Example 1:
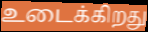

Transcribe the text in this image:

உடைக்கிறது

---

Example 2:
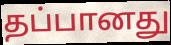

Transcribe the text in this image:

தப்பானது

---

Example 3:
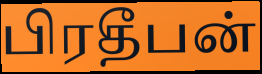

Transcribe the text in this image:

பிரதீபன்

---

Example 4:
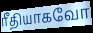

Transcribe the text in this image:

ரீதியாகவோ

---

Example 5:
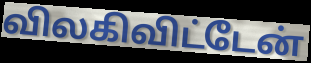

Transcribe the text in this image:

விலகிவிட்டேன்